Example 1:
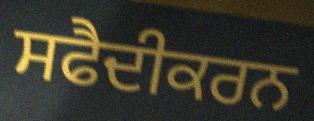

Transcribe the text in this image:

ਸਫੈਦੀਕਰਨ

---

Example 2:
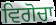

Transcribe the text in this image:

ਵਿਗੋਚਾ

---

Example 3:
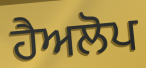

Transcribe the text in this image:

ਹੈਅਲੋਪ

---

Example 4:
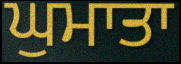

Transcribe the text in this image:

ਘੁਮਾਤਾ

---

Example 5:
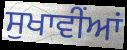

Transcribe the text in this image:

ਸੁਖਾਵੀਂਆਂ